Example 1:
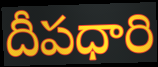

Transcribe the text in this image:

దీపధారి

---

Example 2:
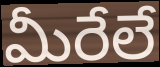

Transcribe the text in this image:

మీరేలే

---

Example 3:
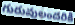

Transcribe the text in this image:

గురువులందరికీ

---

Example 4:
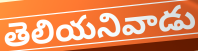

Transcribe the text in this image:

తెలియనివాడు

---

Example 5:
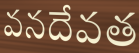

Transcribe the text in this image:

వనదేవత